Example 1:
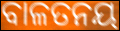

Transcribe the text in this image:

ବାଳତନୟ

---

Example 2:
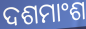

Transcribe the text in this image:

ଦଶମାଂଶ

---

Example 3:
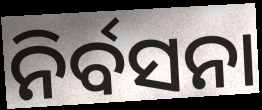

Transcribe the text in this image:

ନିର୍ବସନା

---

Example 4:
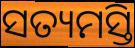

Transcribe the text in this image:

ସତ୍ୟମସ୍ତି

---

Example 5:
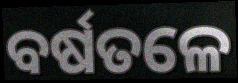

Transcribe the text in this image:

ବର୍ଷତଳେ